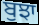
ਬੁਝਾ